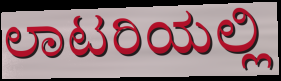
ಲಾಟರಿಯಲ್ಲಿ